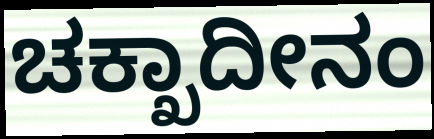
ಚಕ್ಖಾದೀನಂ